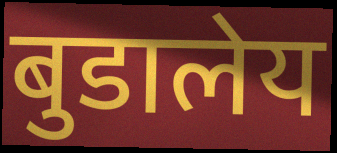
बुडालेय